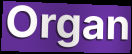
Organ